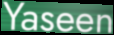
Yaseen